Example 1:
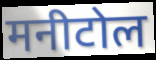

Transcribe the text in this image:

मनीटोल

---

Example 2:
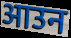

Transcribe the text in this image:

आउन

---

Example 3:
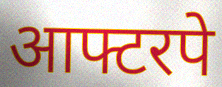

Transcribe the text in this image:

आफ्टरपे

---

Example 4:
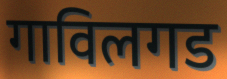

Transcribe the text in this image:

गाविलगड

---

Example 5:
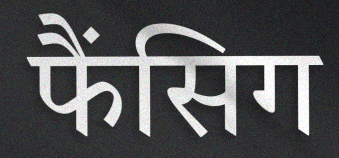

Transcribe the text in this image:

फैंसिग